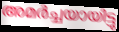
അമർച്ചയായിട്ടു